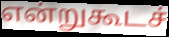
என்றுகூடச்